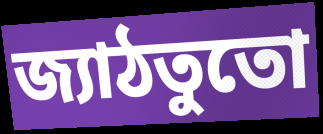
জ্যাঠতুতো